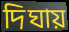
দিঘায়